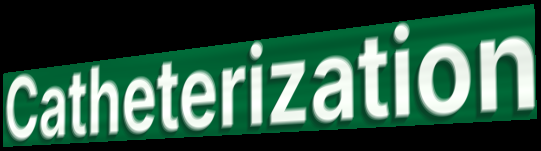
Catheterization